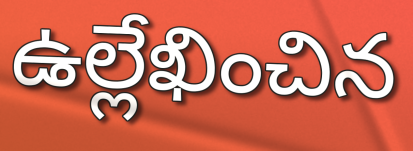
ఉల్లేఖించిన